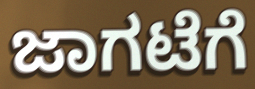
ಜಾಗಟೆಗೆ